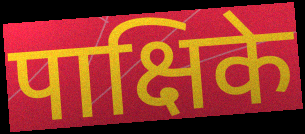
पाक्षिके